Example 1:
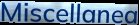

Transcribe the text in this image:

Miscellanea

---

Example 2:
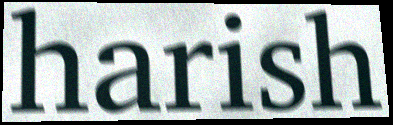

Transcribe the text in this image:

harish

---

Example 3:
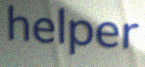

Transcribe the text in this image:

helper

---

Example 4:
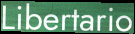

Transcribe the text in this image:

Libertario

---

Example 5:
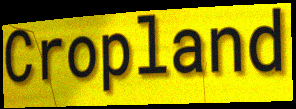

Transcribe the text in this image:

Cropland